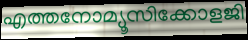
എത്തനോമ്യൂസിക്കോളജി